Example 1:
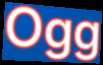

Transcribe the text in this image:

Ogg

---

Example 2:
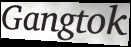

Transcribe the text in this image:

Gangtok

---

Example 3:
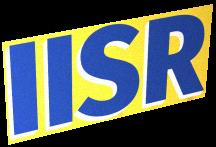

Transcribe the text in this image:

IISR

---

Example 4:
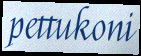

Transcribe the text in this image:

pettukoni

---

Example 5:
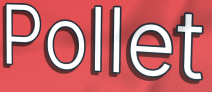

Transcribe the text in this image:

Pollet